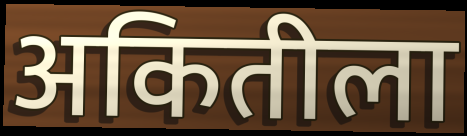
अकितीला